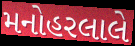
મનોહરલાલે